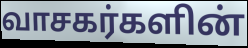
வாசகர்களின்